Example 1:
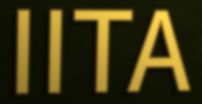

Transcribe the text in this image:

IITA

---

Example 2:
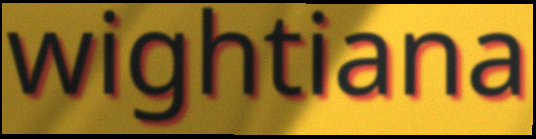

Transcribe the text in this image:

wightiana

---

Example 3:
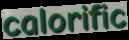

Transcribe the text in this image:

calorific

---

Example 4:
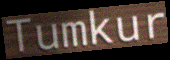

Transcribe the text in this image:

Tumkur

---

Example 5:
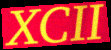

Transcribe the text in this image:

XCII